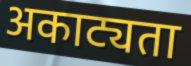
अकाट्यता